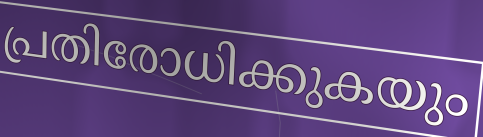
പ്രതിരോധിക്കുകയും